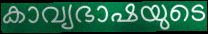
കാവ്യഭാഷയുടെ